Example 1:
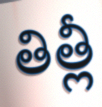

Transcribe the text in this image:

తిత్లీ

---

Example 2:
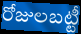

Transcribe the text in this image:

రోజులబట్టీ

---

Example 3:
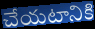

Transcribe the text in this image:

చేయటానికి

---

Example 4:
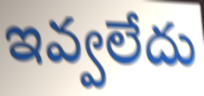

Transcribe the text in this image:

ఇవ్వలేదు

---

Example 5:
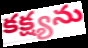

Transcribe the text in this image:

కక్ష్యను